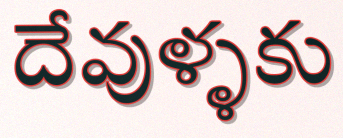
దేవుళ్ళకు